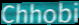
Chhobi